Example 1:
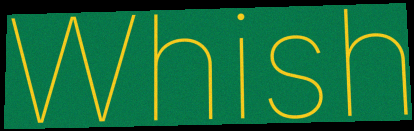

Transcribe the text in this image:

Whish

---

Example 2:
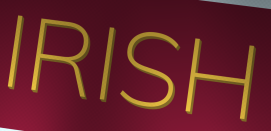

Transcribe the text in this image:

IRISH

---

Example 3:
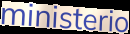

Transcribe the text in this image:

ministerio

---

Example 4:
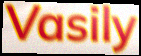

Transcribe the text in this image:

Vasily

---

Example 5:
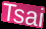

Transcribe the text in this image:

Tsai